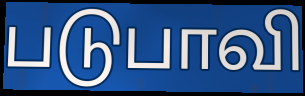
படுபாவி